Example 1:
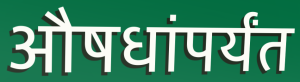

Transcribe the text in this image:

औषधांपर्यंत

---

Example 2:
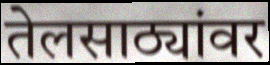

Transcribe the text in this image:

तेलसाठ्यांवर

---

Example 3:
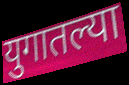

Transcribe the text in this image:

युगातल्या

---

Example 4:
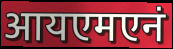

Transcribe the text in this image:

आयएमएनं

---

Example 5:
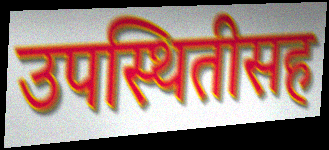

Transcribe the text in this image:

उपस्थितीसह